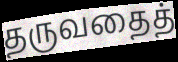
தருவதைத்